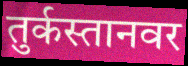
तुर्कस्तानवर